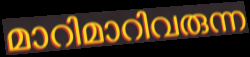
മാറിമാറിവരുന്ന